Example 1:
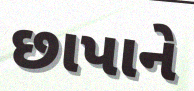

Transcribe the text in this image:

છાપાને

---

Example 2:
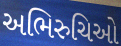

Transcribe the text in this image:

અભિરુચિઓ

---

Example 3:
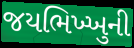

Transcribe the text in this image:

જયભિખ્ખુની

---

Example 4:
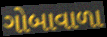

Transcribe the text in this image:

ગોબાવાળા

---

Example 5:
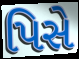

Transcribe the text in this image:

પિસે